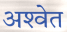
अश्‍वेत